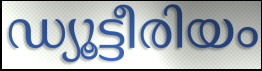
ഡ്യൂട്ടീരിയം